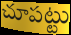
చూపట్టు